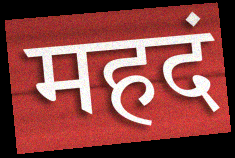
महदं